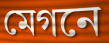
মেগনে